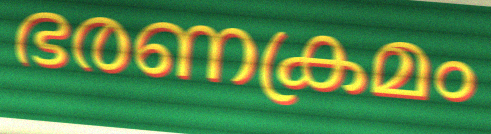
ഭരണക്രമം